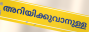
അറിയിക്കുവാനുള്ള